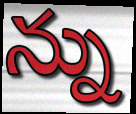
న్ను